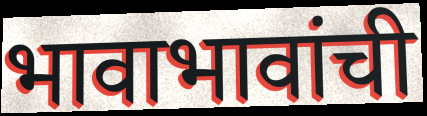
भावाभावांची